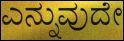
ಎನ್ನುವುದೇ